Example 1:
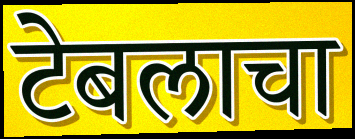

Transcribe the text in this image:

टेबलाचा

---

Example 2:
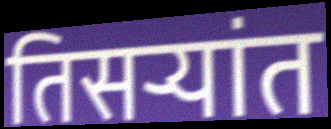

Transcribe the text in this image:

तिसर्‍यांत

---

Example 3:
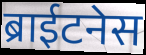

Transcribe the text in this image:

ब्राईटनेस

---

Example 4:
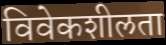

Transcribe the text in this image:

विवेकशीलता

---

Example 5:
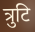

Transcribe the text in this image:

त्रुटि